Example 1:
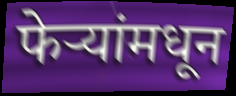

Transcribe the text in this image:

फेऱ्यांमधून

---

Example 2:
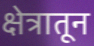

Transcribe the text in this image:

क्षेत्रातून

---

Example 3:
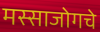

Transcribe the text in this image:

मस्साजोगचे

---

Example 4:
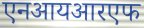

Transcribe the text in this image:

एनआयआरएफ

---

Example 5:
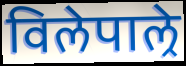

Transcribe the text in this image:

विलेपाल्रे